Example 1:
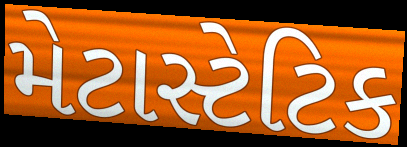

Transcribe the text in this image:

મેટાસ્ટેટિક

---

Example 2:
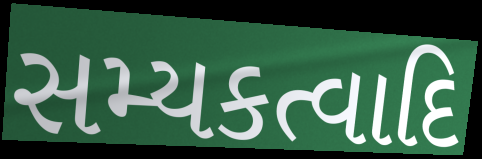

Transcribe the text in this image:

સમ્યકત્વાદિ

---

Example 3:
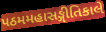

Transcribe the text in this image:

પઠમમહાસઙ્ગીતિકાલે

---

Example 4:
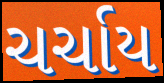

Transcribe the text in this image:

ચર્ચાય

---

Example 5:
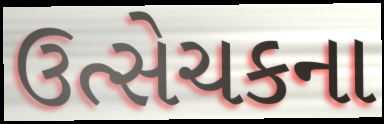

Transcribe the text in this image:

ઉત્સેચકના